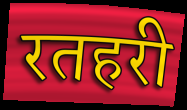
रतहरी